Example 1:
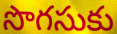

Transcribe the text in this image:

సొగసుకు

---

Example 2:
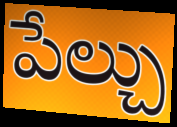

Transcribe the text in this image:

పేల్చు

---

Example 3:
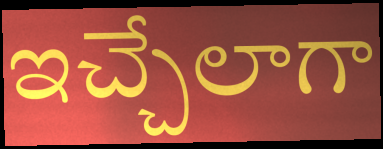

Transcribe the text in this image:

ఇచ్చేలాగా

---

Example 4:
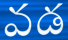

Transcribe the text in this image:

వడ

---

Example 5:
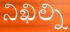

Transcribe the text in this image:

నిఖిల్ని